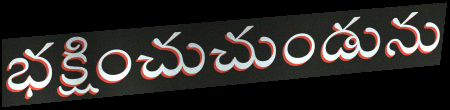
భక్షించుచుండును